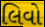
લિવો